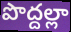
పొద్దల్లా